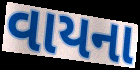
વાયના